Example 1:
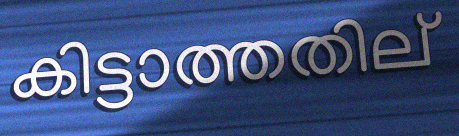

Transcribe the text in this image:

കിട്ടാത്തതില്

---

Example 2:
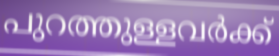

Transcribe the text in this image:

പുറത്തുള്ളവർക്ക്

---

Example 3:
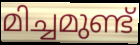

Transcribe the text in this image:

മിച്ചമുണ്ട്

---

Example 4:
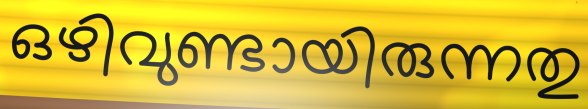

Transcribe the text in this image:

ഒഴിവുണ്ടായിരുന്നതു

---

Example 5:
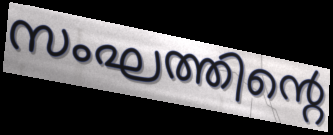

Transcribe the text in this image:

സംഘത്തിന്റെ